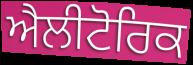
ਐਲੀਟੋਰਿਕ